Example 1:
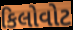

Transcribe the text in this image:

કિલોવોટ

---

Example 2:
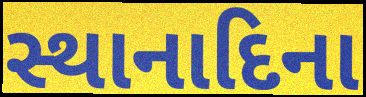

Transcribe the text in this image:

સ્થાનાદિના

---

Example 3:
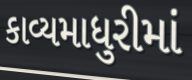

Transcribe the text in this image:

કાવ્યમાધુરીમાં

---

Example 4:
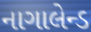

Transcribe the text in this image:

નાગાલેન્ડ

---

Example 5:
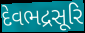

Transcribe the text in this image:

દેવભદ્રસૂરિ